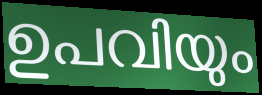
ഉപവിയും